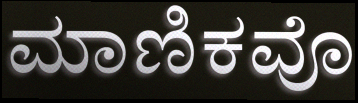
ಮಾಣಿಕವೊ